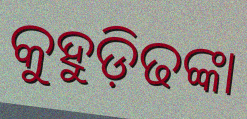
କୁହୁଡ଼ିଢଙ୍କା